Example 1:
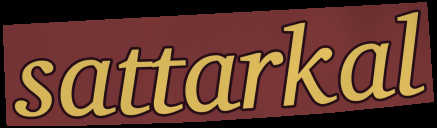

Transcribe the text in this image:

sattarkal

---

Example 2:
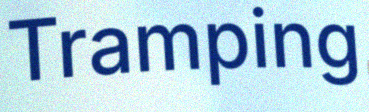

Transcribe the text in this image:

Tramping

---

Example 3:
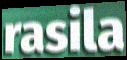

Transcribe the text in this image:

rasila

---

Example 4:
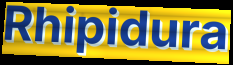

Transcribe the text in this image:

Rhipidura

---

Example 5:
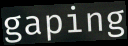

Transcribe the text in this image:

gaping